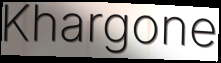
Khargone